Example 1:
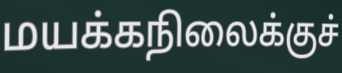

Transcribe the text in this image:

மயக்கநிலைக்குச்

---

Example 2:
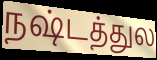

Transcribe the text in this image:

நஷ்டத்துல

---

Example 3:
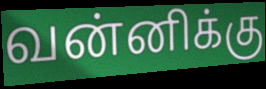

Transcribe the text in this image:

வன்னிக்கு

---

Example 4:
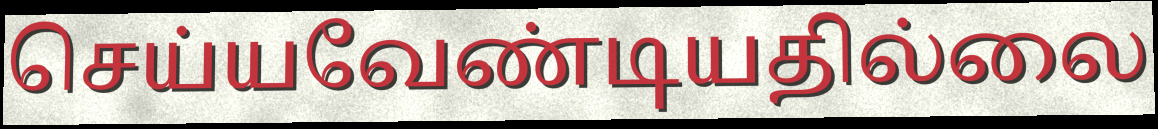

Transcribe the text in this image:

செய்யவேண்டியதில்லை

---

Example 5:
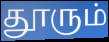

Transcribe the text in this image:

தூரும்